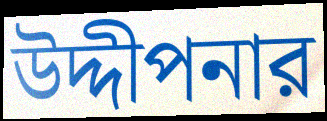
উদ্দীপনার